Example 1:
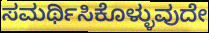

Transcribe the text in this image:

ಸಮರ್ಥಿಸಿಕೊಳ್ಳುವುದೇ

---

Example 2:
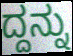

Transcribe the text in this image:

ದ್ದನ್ನು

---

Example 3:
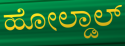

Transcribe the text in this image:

ಹೋಲ್ಡಾಲ್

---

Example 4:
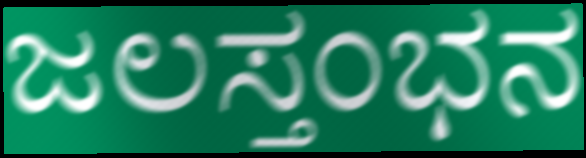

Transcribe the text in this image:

ಜಲಸ್ತಂಭನ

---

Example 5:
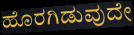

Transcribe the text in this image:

ಹೊರಗಿಡುವುದೇ